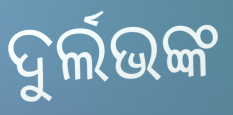
ଦୁର୍ଲଭଙ୍କ